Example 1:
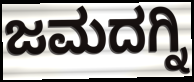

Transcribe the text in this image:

ಜಮದಗ್ನಿ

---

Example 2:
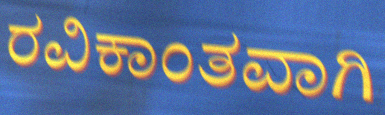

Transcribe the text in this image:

ರವಿಕಾಂತವಾಗಿ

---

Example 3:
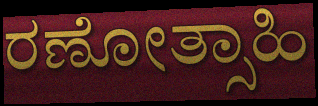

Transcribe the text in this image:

ರಣೋತ್ಸಾಹಿ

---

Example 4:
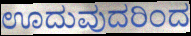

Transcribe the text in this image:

ಊದುವುದರಿಂದ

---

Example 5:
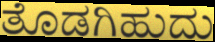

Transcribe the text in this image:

ತೊಡಗಿಹುದು